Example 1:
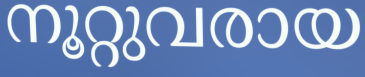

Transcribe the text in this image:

നൂറ്റുവരായ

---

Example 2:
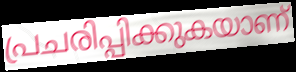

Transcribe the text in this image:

പ്രചരിപ്പിക്കുകയാണ്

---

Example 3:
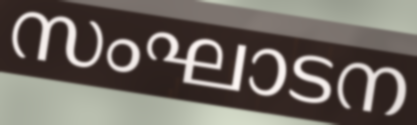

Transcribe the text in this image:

സംഘാടന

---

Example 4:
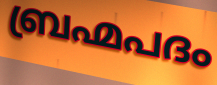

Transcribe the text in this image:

ബ്രഹ്മപദം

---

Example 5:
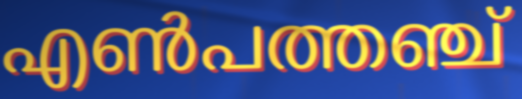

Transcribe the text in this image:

എൺപത്തഞ്ച്